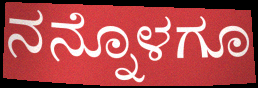
ನನ್ನೊಳಗೂ